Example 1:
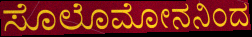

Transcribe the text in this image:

ಸೊಲೊಮೋನನಿಂದ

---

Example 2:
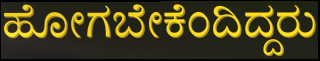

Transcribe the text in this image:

ಹೋಗಬೇಕೆಂದಿದ್ದರು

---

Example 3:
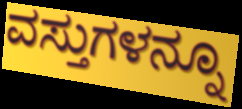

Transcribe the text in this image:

ವಸ್ತುಗಳನ್ನೂ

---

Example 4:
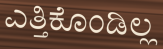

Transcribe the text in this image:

ಎತ್ತಿಕೊಂಡಿಲ್ಲ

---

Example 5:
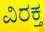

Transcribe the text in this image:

ವಿರಕ್ತ